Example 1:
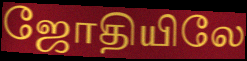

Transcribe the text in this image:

ஜோதியிலே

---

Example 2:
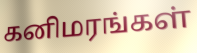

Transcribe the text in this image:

கனிமரங்கள்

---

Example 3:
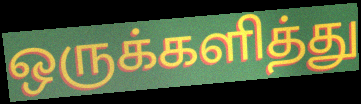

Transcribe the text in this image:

ஒருக்களித்து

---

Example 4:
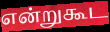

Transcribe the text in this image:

என்றுகூட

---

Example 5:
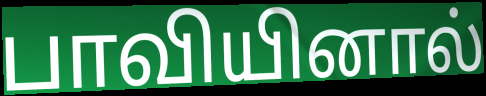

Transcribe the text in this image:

பாவியினால்